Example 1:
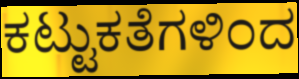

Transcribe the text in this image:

ಕಟ್ಟುಕತೆಗಳಿಂದ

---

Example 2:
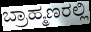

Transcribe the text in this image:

ಬ್ರಾಹ್ಮಣರಲ್ಲಿ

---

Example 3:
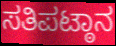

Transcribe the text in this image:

ಸತಿಪಟ್ಠಾನ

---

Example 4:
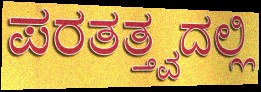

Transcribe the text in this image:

ಪರತತ್ತ್ವದಲ್ಲಿ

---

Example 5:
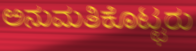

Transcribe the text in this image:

ಅನುಮತಿಕೊಟ್ಟರು